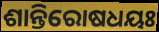
ଶାନ୍ତିରୋଷଧୟଃ